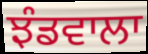
ਝੰਡਵਾਲਾ